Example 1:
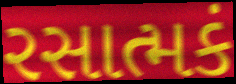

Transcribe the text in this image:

રસાત્મકં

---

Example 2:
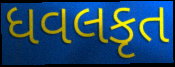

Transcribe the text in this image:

ધવલકૃત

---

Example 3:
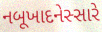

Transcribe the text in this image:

નબૂખાદનેસ્સારે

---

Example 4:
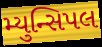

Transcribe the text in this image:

મ્યુન્સિપલ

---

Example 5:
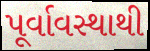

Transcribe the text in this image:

પૂર્વાવસ્થાથી